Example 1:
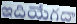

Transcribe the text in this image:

ఇదియేగదా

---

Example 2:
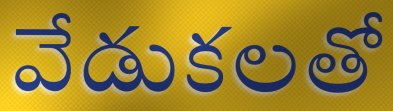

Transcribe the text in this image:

వేడుకలతో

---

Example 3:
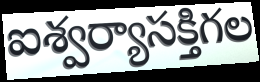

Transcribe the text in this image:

ఐశ్వర్యాసక్తిగల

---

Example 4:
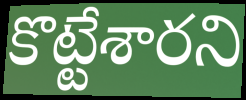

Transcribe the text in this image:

కొట్టేశారని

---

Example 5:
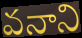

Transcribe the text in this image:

వనాని